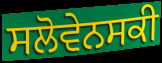
ਸਲੋਵੇਨਸਕੀ